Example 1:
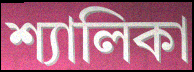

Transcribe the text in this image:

শ্যালিকা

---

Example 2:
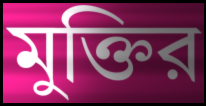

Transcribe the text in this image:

মুক্তির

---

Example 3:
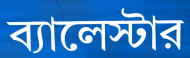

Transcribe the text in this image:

ব্যালেস্টার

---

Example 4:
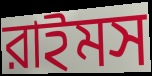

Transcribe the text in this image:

রাইমস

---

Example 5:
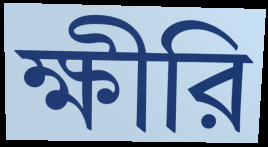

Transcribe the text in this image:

ক্ষীরি